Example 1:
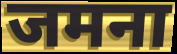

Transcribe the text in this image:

जमना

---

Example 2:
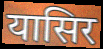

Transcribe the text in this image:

यासिर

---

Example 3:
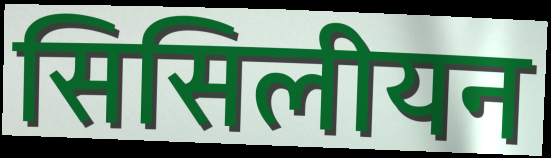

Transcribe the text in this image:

सिसिलीयन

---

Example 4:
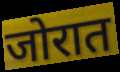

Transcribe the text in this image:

जोरात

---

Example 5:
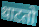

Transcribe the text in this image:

थाटतो